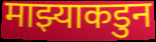
माझ्याकडुन